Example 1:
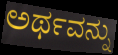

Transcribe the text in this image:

ಅರ್ಥವನ್ನು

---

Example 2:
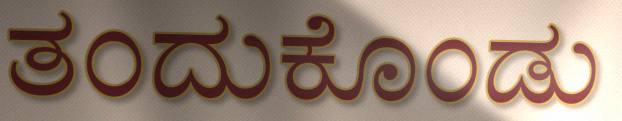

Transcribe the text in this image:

ತಂದುಕೊಂಡು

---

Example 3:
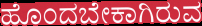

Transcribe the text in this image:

ಹೊಂದಬೇಕಾಗಿರುವ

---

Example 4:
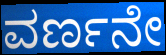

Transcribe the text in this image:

ವರ್ಣನೇ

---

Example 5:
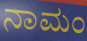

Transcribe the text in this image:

ನಾಮಂ